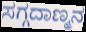
ಸಗ್ಗದಾಣ್ಮನ